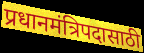
प्रधानमंत्रिपदासाठी